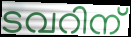
ടവറിന്